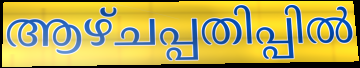
ആഴ്ചപ്പതിപ്പിൽ